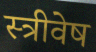
स्त्रीवेष